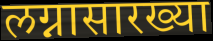
लग्नासारख्या